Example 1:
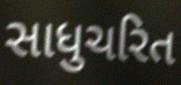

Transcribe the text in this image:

સાધુચરિત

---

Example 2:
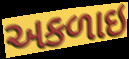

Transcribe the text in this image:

અકળાઇ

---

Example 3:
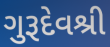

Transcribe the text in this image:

ગુરૂદેવશ્રી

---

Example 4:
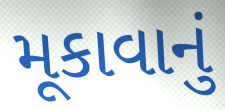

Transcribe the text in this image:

મૂકાવાનું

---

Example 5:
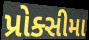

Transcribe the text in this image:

પ્રોક્સીમા